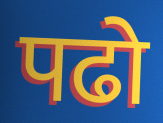
पढो